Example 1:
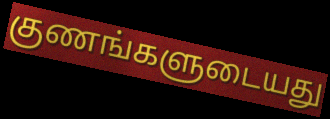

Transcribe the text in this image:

குணங்களுடையது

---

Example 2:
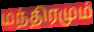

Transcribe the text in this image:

மந்திரமும்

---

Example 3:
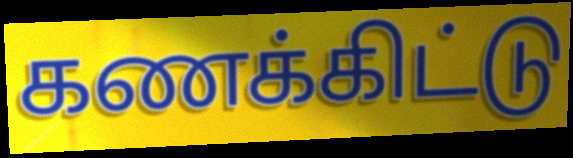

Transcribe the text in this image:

கணக்கிட்டு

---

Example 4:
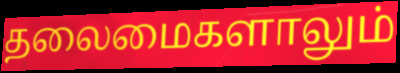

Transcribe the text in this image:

தலைமைகளாலும்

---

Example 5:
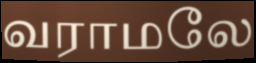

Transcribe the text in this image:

வராமலே